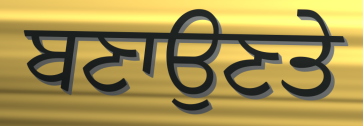
ਬਣਾਉਣਤੇ